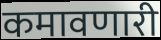
कमावणारी